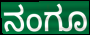
ನಂಗೂ